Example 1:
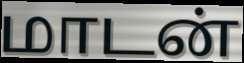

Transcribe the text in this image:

மாடன்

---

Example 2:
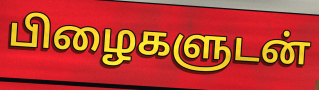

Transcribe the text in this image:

பிழைகளுடன்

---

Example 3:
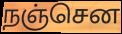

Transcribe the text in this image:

நஞ்சென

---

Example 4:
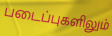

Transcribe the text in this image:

படைப்புகளிலும்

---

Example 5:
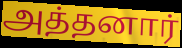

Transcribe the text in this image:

அத்தனார்